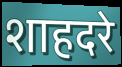
शाहदरे